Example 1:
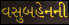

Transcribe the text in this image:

વસુબહેનની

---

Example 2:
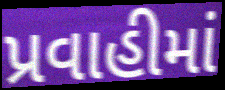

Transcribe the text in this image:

પ્રવાહીમાં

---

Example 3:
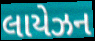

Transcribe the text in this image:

લાયેઝન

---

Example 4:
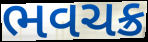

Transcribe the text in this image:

ભવચક્ર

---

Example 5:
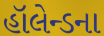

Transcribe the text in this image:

હૉલેન્ડના